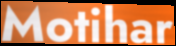
Motihar